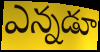
ఎన్నడూ